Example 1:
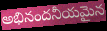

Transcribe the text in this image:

అభినందనీయమైన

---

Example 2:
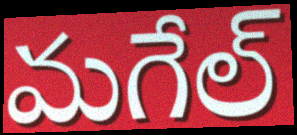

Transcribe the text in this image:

మగేల్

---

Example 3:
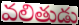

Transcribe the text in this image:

వలితుడు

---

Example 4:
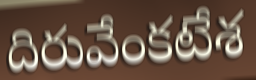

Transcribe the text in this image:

దిరువేంకటేశ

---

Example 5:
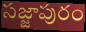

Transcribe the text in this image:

సజ్జాపురం